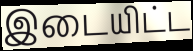
இடையிட்ட